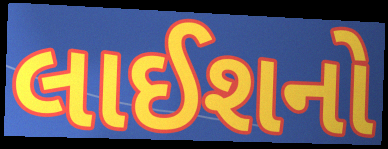
લાઈશનો